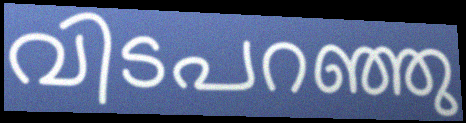
വിടപറഞ്ഞു